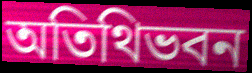
অতিথিভবন